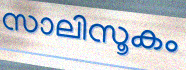
സാലിസൂകം